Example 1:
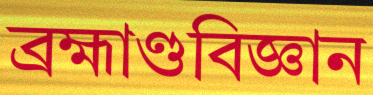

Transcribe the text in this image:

ব্ৰহ্মাণ্ডবিজ্ঞান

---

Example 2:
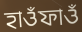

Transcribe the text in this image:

হাওঁফাওঁ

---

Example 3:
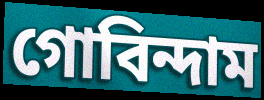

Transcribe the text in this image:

গোবিন্দাম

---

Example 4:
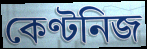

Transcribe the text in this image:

কেণ্টনিজ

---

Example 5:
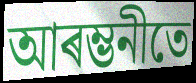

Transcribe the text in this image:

আৰম্ভনীতে